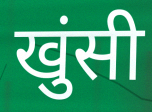
खुंसी